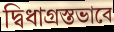
দ্বিধাগ্রস্তভাবে